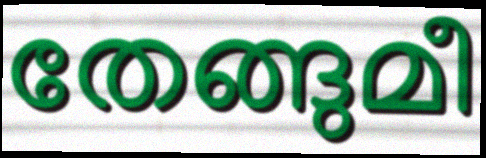
തേങ്ങുമീ